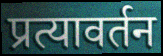
प्रत्यावर्तन